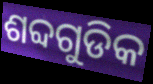
ଶବ୍ଦଗୁଡିକ